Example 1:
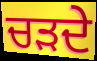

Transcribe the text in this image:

ਚੜਦੇ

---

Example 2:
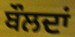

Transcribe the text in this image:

ਬੌਲਦਾਂ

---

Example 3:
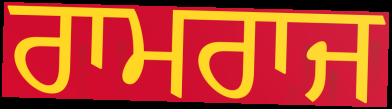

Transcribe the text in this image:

ਰਾਮਰਾਜ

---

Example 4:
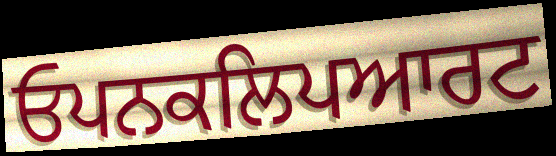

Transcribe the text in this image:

ਓਪਨਕਲਿਪਆਰਟ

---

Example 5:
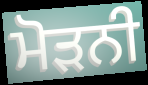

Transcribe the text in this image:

ਮੋੜਨੀ